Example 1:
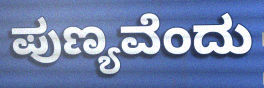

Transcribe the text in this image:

ಪುಣ್ಯವೆಂದು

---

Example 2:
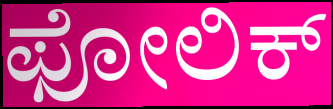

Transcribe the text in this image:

ಫೋಲಿಕ್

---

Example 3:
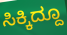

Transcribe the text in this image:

ಸಿಕ್ಕಿದ್ದೂ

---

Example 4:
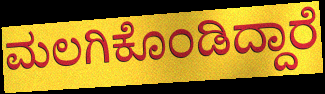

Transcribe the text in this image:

ಮಲಗಿಕೊಂಡಿದ್ದಾರೆ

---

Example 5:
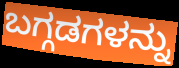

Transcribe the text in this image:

ಬಗ್ಗಡಗಳನ್ನು